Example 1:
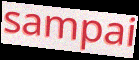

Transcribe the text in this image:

sampai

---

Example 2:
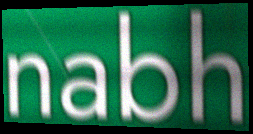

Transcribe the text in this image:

nabh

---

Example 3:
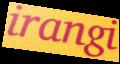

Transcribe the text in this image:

irangi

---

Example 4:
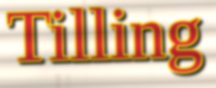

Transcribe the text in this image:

Tilling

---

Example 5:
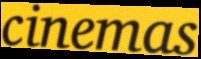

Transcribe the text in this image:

cinemas